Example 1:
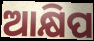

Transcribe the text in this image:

ଆକ୍ଷିପ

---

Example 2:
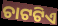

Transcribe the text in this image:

ଚାଟଟିଏ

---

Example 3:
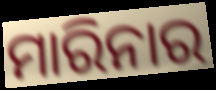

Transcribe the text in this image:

ମାରିନାର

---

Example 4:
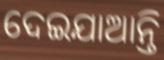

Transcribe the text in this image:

ଦେଇଯାଆନ୍ତି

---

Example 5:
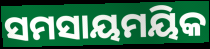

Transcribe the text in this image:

ସମସାୟମୟିକ